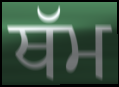
ਥੱਮ